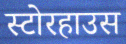
स्टोरहाउस